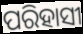
ପରିହାସୀ